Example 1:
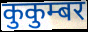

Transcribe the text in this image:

कुकुम्बर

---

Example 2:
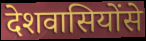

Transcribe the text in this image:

देशवासियोंसे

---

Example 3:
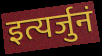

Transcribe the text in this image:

इत्यर्जुनं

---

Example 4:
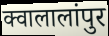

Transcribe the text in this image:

क्वालालांपुर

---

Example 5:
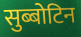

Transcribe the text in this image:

सुब्बोटिन